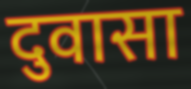
दुवासा